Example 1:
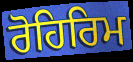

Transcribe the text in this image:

ਰੋਹਿਰਿਮ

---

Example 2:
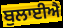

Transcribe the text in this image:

ਬੁਲਾਈਐ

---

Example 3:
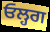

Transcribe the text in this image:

ਓਲ੍ਹਗ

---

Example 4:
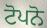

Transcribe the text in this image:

ਟੋਪਨੋ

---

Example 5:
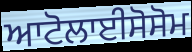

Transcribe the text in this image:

ਆਟੋਲਾਈਸੋਸੋਮ